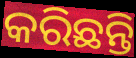
କରିଛନ୍ତି